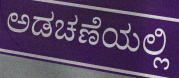
ಅಡಚಣೆಯಲ್ಲಿ